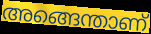
അങ്ങെന്താണ്